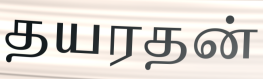
தயரதன்